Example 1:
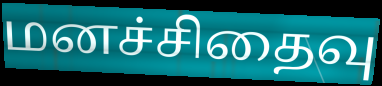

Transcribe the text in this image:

மனச்சிதைவு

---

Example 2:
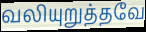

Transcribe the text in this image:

வலியுறுத்தவே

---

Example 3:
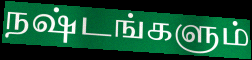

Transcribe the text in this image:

நஷ்டங்களும்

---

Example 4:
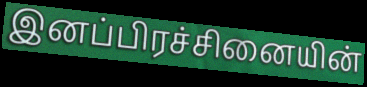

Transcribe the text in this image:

இனப்பிரச்சினையின்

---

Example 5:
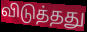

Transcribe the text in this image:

விடுத்தது